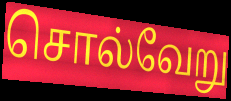
சொல்வேறு